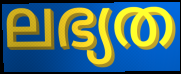
ലഭ്യത